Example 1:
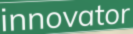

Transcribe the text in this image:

innovator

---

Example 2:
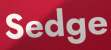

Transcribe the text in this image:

Sedge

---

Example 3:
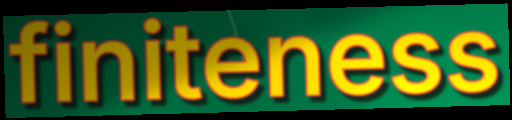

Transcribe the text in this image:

finiteness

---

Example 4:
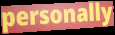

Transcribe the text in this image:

personally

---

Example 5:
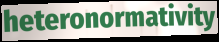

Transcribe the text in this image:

heteronormativity